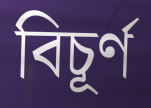
বিচূর্ণ